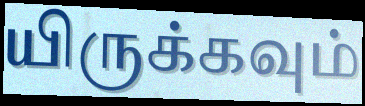
யிருக்கவும்